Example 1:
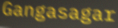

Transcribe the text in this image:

Gangasagar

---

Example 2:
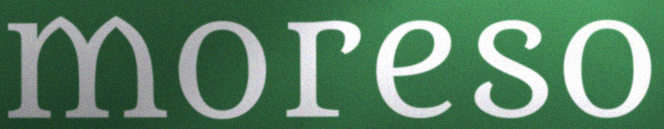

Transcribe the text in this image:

moreso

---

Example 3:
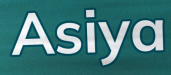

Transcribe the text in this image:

Asiya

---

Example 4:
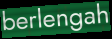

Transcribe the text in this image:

berlengah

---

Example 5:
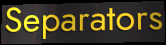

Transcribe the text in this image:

Separators